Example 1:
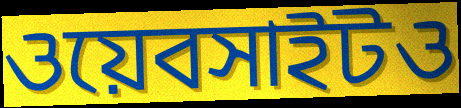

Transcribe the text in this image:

ওয়েবসাইটও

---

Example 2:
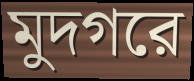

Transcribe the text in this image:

মুদগরে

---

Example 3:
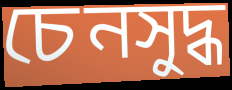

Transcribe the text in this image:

চেনসুদ্ধ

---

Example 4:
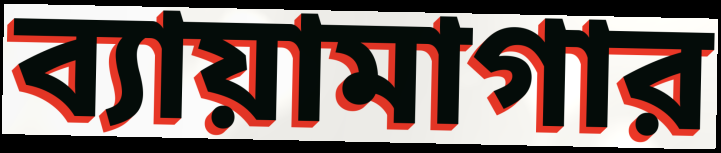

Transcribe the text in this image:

ব্যায়ামাগার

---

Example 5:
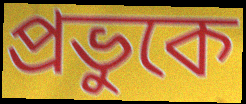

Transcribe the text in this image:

প্রভুকে